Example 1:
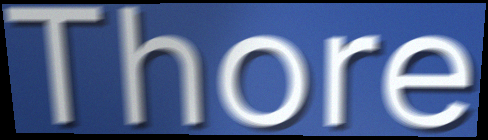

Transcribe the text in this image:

Thore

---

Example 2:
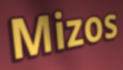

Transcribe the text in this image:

Mizos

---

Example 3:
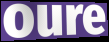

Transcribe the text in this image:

oure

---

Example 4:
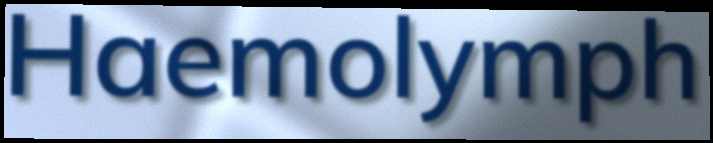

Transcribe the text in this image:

Haemolymph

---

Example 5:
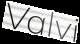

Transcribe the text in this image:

Valvi